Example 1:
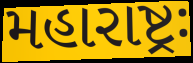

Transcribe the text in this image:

મહારાષ્ટ્રઃ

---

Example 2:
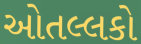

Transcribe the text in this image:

ઓતલ્લકો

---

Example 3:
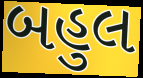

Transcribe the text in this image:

બહુલ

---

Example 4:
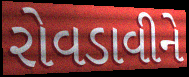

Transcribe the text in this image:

રોવડાવીને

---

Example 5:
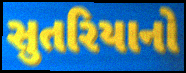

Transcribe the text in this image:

સુતરિયાનો